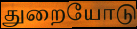
துறையோடு